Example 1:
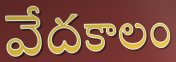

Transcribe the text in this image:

వేదకాలం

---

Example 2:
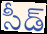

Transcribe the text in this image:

సీడ్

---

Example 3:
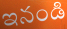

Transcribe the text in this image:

ఇనండి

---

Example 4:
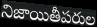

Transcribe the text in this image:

నిజాయితీపరుల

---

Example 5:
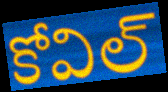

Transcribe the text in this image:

కోవిల్